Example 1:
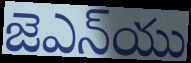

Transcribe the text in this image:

జెఎన్‌యు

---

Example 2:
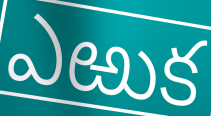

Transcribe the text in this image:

ఎఱుక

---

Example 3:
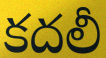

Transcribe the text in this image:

కదలీ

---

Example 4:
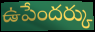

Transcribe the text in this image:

ఉపేందర్కు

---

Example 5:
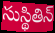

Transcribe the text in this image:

సుస్థితిన్